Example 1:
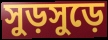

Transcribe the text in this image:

সুড়সুড়ে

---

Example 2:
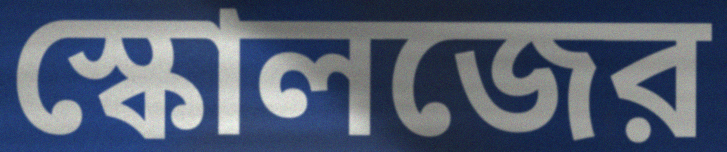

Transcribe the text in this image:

স্কোলজের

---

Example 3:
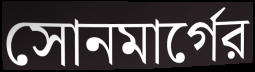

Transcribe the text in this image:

সোনমার্গের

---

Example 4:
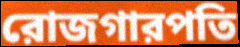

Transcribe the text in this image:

রোজগারপতি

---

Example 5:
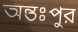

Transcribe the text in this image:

অন্তঃপুর